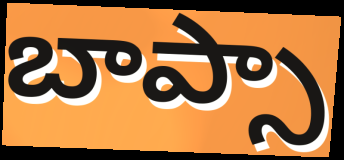
బాప్సా